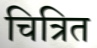
चित्रित